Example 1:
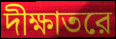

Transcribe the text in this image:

দীক্ষাতরে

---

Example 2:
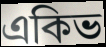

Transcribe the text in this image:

একিভ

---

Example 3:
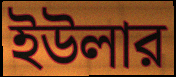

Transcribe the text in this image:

ইউলার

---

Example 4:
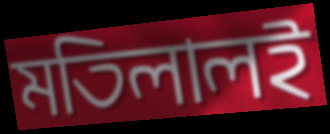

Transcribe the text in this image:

মতিলালই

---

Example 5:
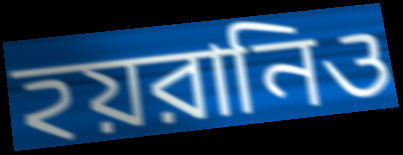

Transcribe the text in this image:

হয়রানিও